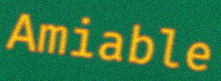
Amiable